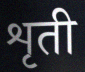
शृती